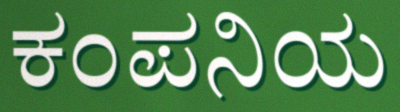
ಕಂಪನಿಯ